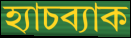
হ্যাচব্যাক